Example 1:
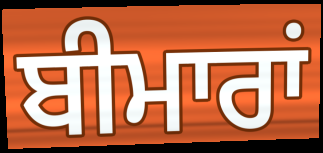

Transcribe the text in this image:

ਬੀਮਾਰਾਂ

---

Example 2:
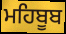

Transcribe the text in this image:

ਮਹਿਬੂਬ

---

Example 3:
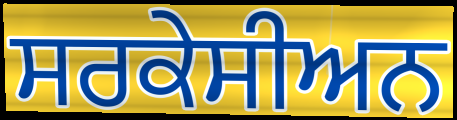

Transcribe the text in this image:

ਸਰਕੇਸੀਅਨ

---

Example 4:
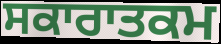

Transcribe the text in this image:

ਸਕਾਰਾਤਕਮ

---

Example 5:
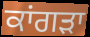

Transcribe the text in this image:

ਕਾਂਗਡ਼ਾ